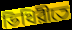
ভিখিরীতে